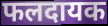
फलदायक